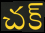
చక్